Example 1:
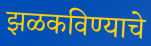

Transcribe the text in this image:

झळकविण्याचे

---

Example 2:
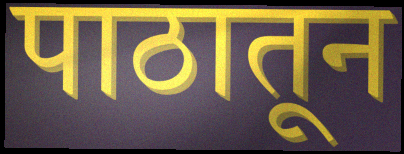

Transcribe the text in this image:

पाठातून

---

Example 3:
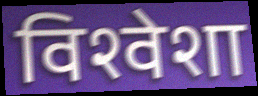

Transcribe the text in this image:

विश्वेशा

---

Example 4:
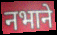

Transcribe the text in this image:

नभाने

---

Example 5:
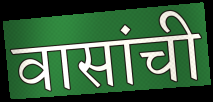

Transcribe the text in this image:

वासांची